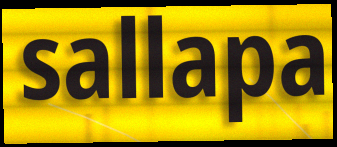
sallapa